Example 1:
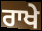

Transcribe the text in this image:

ਰਾਖੇ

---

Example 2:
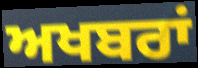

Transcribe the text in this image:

ਅਖਬਰਾਂ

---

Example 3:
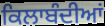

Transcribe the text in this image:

ਕਿਲਾਬੰਦੀਆਂ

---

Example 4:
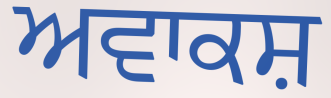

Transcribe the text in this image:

ਅਵਾਕਸ਼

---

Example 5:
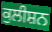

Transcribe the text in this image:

ਕੁਲੀਸ਼ਨ